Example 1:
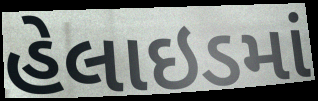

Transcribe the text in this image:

હેલાઇડમાં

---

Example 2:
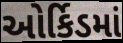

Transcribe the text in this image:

ઓર્કિડમાં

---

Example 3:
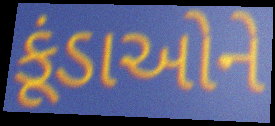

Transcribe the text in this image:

કૂંડાઓને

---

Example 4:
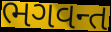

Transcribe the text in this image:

ભગવન્ત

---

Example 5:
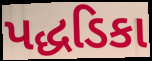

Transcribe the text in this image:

પદ્ધડિકા